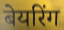
बेयरिंग